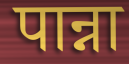
पान्ना